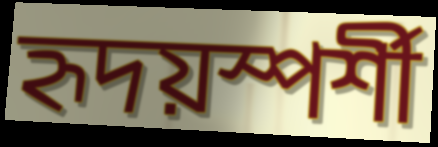
হৃদয়স্পর্শী